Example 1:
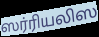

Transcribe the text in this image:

ஸர்ரியலிஸ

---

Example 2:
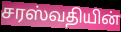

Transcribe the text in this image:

சரஸ்வதியின்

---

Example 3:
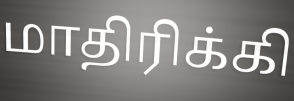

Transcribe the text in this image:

மாதிரிக்கி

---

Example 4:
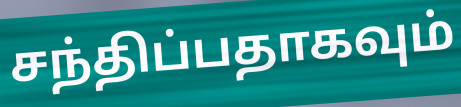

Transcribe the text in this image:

சந்திப்பதாகவும்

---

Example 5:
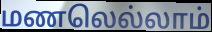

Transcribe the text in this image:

மணலெல்லாம்